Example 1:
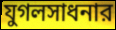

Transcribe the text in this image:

যুগলসাধনার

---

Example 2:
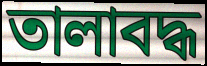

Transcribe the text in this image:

তালাবদ্ধ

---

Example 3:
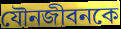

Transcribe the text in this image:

যৌনজীবনকে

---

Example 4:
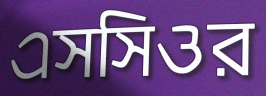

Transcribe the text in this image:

এসসিওর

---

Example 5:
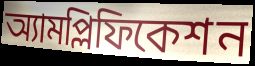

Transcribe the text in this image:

অ্যামপ্লিফিকেশন